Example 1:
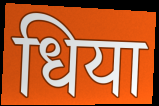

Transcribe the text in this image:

धिया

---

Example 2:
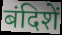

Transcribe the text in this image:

बंदिशें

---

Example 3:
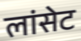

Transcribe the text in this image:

लांसेट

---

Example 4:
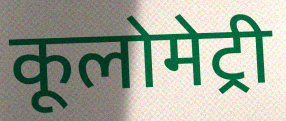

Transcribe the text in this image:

कूलोमेट्री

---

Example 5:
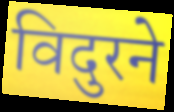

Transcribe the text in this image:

विदुरने